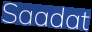
Saadat